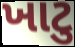
ખાટુ